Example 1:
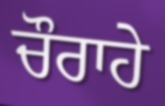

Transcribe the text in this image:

ਚੌਰਾਹੇ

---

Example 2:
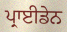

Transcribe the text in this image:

ਪ੍ਰਾਈਡੇਨ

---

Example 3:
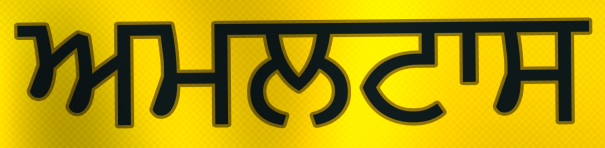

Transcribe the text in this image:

ਅਮਲਟਾਸ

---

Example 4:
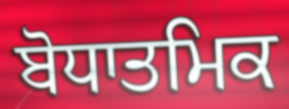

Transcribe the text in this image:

ਬੋਧਾਤਮਿਕ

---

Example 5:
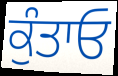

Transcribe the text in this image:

ਕੁੰਤਾਓ